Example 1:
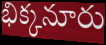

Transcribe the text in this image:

భిక్కనూరు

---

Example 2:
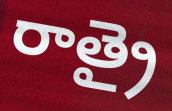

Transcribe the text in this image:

రాత్రై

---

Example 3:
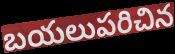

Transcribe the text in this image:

బయలుపరిచిన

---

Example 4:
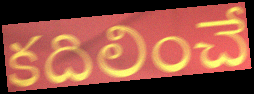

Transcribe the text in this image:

కదిలించే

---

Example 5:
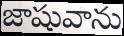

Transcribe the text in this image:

జాషువాను